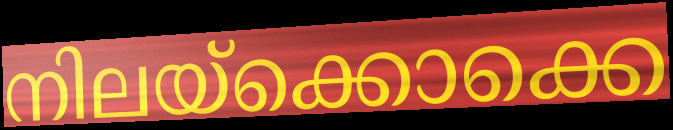
നിലയ്ക്കൊക്കെ